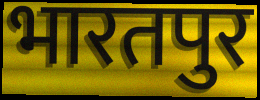
भारतपुर